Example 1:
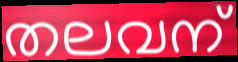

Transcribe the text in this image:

തലവന്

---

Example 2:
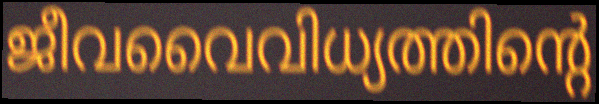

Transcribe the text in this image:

ജീവവൈവിധ്യത്തിന്റെ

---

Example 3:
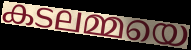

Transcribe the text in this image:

കടലമ്മയെ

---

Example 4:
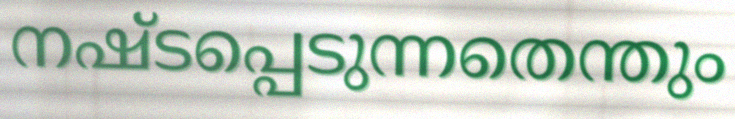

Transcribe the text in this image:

നഷ്ടപ്പെടുന്നതെന്തും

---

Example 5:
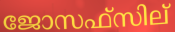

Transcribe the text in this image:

ജോസഫ്സില്